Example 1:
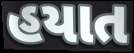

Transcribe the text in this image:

હયાત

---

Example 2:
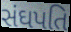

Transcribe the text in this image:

સંઘપતિ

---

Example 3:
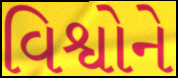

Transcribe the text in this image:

વિશ્વોને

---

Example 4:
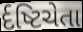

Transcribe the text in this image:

ર્દષ્ટિચેતા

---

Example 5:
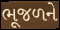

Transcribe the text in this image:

ભૂજળને